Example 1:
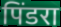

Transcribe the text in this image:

पिंडरा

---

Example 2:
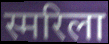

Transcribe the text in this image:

स्मरिला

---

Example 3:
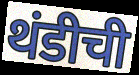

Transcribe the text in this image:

थंडीची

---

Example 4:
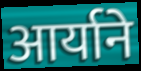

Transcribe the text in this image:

आर्याने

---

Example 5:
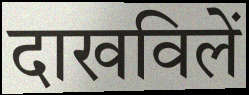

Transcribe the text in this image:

दाखविलें